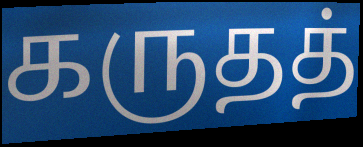
கருதத்